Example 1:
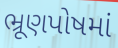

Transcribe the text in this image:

ભ્રૂણપોષમાં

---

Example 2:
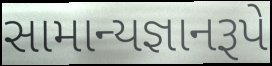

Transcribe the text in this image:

સામાન્યજ્ઞાનરૂપે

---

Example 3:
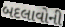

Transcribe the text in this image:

બદલાવોની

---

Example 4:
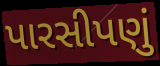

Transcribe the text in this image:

પારસીપણું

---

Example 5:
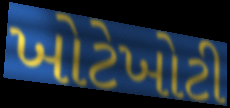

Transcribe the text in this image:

ખોટેખોટી